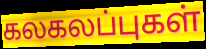
கலகலப்புகள்